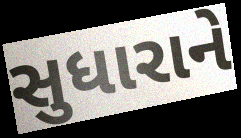
સુધારાને